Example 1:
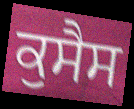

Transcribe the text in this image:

ਕੁਸੈਸ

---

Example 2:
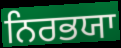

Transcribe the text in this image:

ਨਿਰਭਯਾ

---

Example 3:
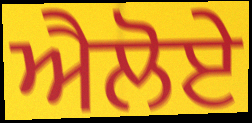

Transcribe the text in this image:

ਐਲੋਏ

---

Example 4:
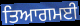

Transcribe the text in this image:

ਤਿਆਗਮਈ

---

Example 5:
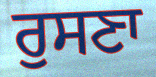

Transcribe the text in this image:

ਰੁਸਣਾ